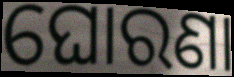
ଘୋରଣା